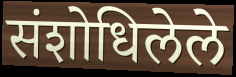
संशोधिलेले